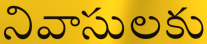
నివాసులకు